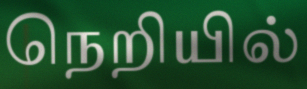
நெறியில்